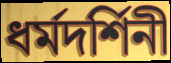
ধর্মদর্শিনী